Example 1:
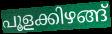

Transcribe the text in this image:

പൂളക്കിഴങ്ങ്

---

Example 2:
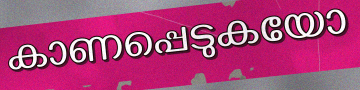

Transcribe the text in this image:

കാണപ്പെടുകയോ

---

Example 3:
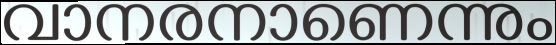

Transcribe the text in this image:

വാനരനാണെന്നും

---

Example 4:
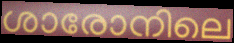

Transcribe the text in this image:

ശാരോനിലെ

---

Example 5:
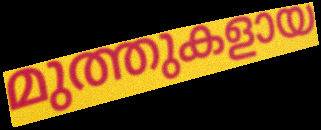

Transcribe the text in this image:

മുത്തുകളായ